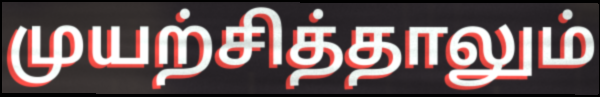
முயற்சித்தாலும்